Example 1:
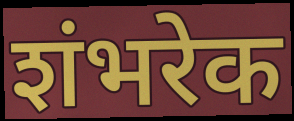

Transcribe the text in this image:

शंभरेक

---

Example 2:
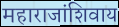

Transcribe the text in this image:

महाराजांशिवाय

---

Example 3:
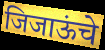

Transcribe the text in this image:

जिजाऊंचे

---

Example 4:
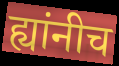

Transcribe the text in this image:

ह्यांनीच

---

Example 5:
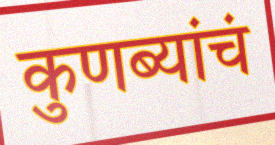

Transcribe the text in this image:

कुणब्यांचं